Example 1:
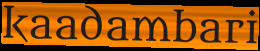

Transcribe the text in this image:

kaadambari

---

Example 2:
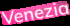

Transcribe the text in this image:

Venezia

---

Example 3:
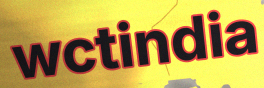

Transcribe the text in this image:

wctindia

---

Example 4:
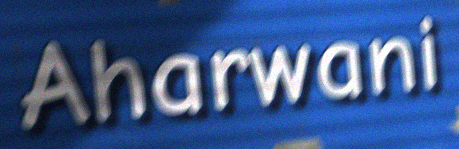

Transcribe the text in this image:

Aharwani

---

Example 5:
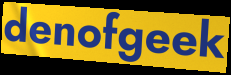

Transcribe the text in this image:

denofgeek